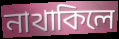
নাথাকিলে